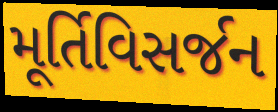
મૂર્તિવિસર્જન